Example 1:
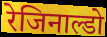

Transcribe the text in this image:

रेजिनाल्डो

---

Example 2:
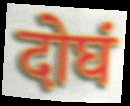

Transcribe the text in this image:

दोघं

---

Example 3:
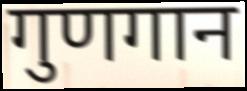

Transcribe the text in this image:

गुणगान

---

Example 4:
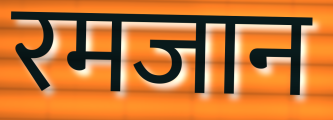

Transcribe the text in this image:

रमजान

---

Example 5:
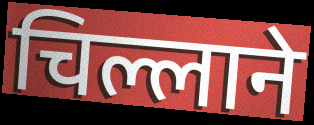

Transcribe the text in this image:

चिल्लाने